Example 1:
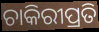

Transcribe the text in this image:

ଚାକିରୀପ୍ରତି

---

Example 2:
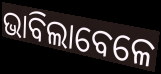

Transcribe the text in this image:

ଭାବିଲାବେଳେ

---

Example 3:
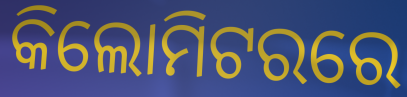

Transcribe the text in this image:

କିଲୋମିଟରରେ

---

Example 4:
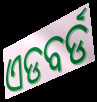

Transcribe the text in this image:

ଏଡବର୍ଡ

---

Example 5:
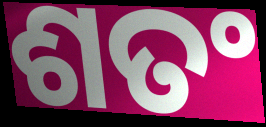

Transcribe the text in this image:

ଶତଂ